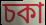
চকা